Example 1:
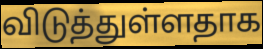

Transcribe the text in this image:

விடுத்துள்ளதாக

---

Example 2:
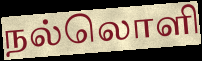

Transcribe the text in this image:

நல்லொளி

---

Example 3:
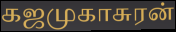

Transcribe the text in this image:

கஜமுகாசுரன்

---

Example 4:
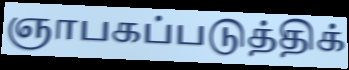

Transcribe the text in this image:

ஞாபகப்படுத்திக்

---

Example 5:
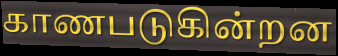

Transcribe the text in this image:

காணபடுகின்றன